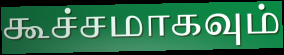
கூச்சமாகவும்